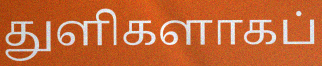
துளிகளாகப்